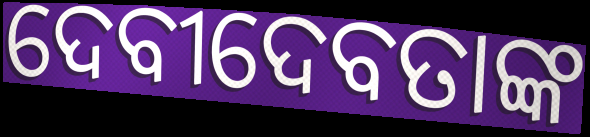
ଦେବୀଦେବତାଙ୍କ